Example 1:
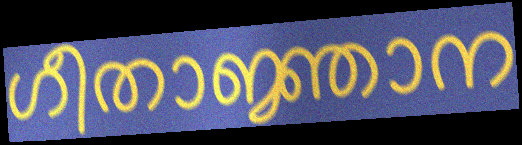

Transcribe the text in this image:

ഗീതാജ്ഞാന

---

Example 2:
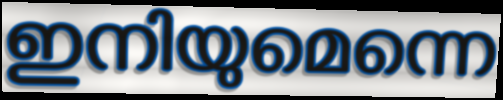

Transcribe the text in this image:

ഇനിയുമെന്നെ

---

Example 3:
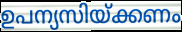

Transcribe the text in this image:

ഉപന്യസിയ്ക്കണം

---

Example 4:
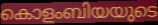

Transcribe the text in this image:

കൊളംബിയയുടെ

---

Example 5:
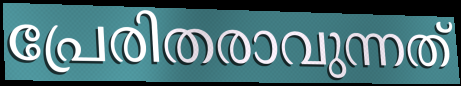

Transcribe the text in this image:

പ്രേരിതരാവുന്നത്